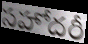
సహోదరీ